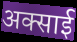
अक्साई